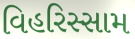
વિહરિસ્સામ